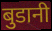
बुडानी